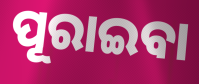
ପୂରାଇବା